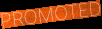
PROMOTED